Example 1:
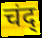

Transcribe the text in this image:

चंद्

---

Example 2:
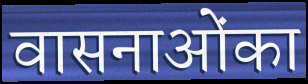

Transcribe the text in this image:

वासनाओंका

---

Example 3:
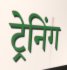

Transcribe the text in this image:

ट्रेनिंग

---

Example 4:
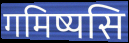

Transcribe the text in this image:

गमिष्यसि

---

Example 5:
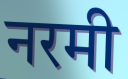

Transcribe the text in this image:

नरमी